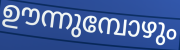
ഊന്നുമ്പോഴും